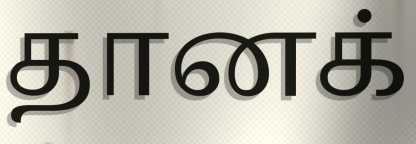
தானக்